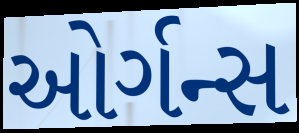
ઓર્ગન્સ